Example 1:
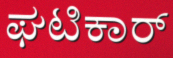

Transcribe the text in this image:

ಘಟಿಕಾರ್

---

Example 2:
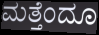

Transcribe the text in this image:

ಮತ್ತೆಂದೂ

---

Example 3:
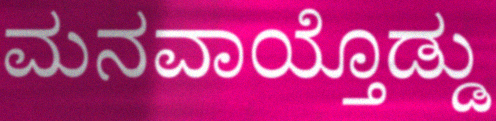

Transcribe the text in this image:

ಮನವಾಯ್ತೊಡ್ಡು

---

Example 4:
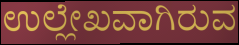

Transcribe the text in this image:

ಉಲ್ಲೇಖವಾಗಿರುವ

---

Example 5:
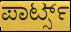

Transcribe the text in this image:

ಪಾರ್ಟ್ಸ್